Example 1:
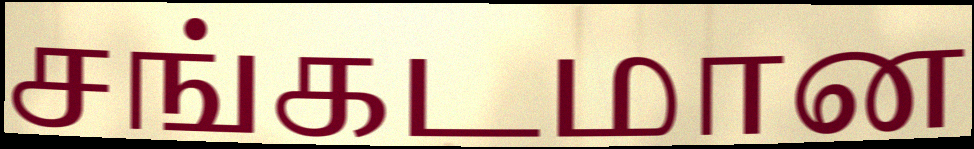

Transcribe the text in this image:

சங்கடமான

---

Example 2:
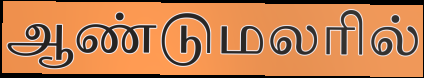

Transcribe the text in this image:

ஆண்டுமலரில்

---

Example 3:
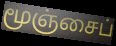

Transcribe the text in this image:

மூஞ்சைப்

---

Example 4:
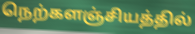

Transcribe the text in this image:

நெற்களஞ்சியத்தில்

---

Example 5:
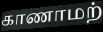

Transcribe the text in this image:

காணாமற்